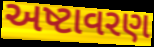
અષ્ટાવરણ